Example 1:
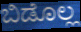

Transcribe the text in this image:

ಬಿಡೊಲ್ಲ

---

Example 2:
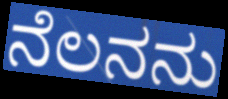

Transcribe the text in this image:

ನೆಲನನು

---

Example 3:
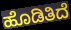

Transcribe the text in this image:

ಹೊಡಿತಿದೆ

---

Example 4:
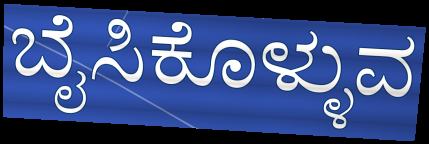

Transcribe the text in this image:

ಬೈಸಿಕೊಳ್ಳುವ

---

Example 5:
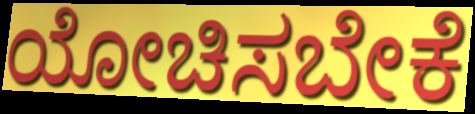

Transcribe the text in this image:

ಯೋಚಿಸಬೇಕೆ